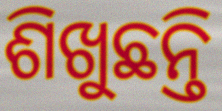
ଶିଖୁଛନ୍ତି